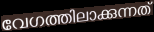
വേഗത്തിലാക്കുന്നത്